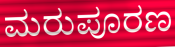
ಮರುಪೂರಣ